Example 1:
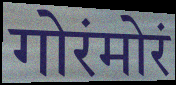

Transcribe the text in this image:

गोरंमोरं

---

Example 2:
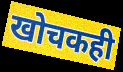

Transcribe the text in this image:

खोचकही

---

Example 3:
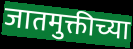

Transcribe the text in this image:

जातमुक्तीच्या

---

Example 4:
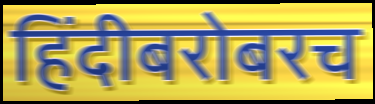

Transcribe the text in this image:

हिंदीबरोबरच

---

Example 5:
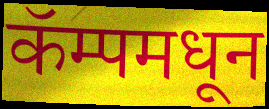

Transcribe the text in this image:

कॅम्पमधून